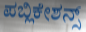
ಪಬ್ಲಿಕೇಶನ್ಸ್